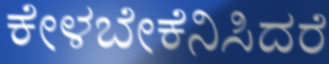
ಕೇಳಬೇಕೆನಿಸಿದರೆ